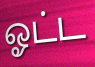
ஓட்ட